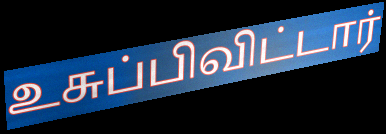
உசுப்பிவிட்டார்